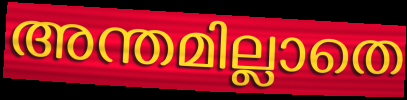
അന്തമില്ലാതെ